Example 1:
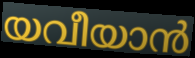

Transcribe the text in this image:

യവീയാൻ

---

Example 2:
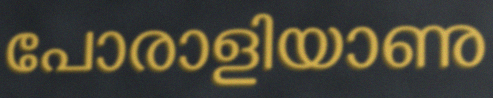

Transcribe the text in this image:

പോരാളിയാണു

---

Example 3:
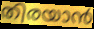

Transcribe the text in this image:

തിരയാൻ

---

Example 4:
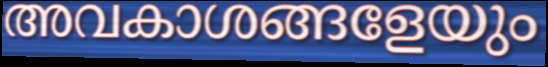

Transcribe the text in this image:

അവകാശങ്ങളേയും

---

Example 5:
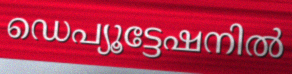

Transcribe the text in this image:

ഡെപ്യൂട്ടേഷനിൽ